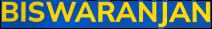
BISWARANJAN